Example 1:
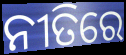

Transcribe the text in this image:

ନୀତିରେ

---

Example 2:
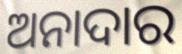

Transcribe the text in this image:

ଅନାଦାର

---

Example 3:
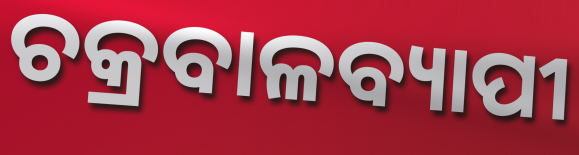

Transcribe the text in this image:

ଚକ୍ରବାଳବ୍ୟାପୀ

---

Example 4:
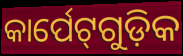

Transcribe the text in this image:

କାର୍ପେଟ୍‌ଗୁଡ଼ିକ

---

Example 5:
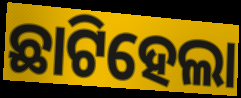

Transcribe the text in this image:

ଛାଟିହେଲା